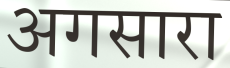
अगसारा